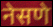
नेसणे